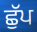
ਛੁੱਪ